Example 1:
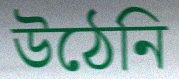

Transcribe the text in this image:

উঠেনি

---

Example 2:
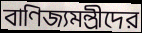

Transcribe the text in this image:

বাণিজ্যমন্ত্রীদের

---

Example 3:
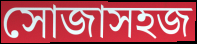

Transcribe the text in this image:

সোজাসহজ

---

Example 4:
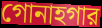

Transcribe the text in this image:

গোনাহগার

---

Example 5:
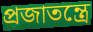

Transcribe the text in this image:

প্রজাতন্ত্রে